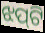
ଝପ୍‌ଟି